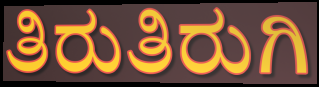
ತಿರುತಿರುಗಿ